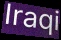
Iraqi